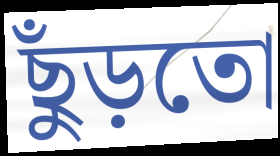
ছুঁড়তো